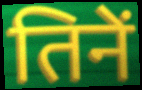
तिनें